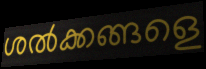
ശൽക്കങ്ങളെ